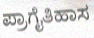
ಪ್ರಾಗೈತಿಹಾಸ